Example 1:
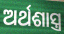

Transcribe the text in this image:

ଅର୍ଥଶାସ୍ତ୍ର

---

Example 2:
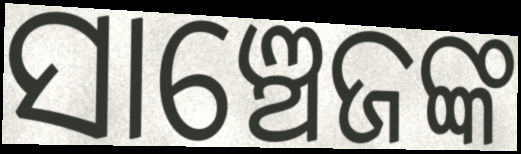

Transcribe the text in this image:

ସାଞ୍ଚେଜଙ୍କ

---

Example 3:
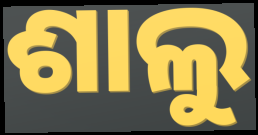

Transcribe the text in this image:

ଶାଲୁ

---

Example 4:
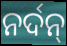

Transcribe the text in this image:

ନର୍ଦନ୍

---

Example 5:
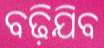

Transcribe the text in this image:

ବଢ଼ିଯିବ